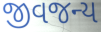
જીવજન્ય